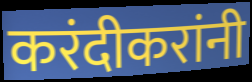
करंदीकरांनी